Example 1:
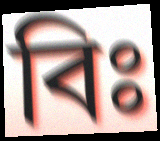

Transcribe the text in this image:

বিঃ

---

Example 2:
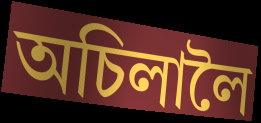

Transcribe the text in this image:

অচিলালৈ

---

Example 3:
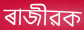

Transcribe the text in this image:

ৰাজীৱক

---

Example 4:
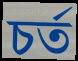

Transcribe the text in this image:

চৰ্ত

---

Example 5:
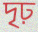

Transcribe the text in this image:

দৃঢ়